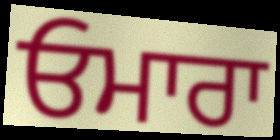
ਓਮਾਰਾ